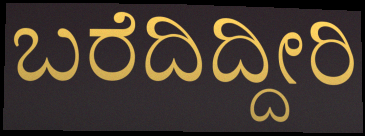
ಬರೆದಿದ್ದೀರಿ